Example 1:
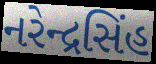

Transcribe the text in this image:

નરેન્દ્રસિંહ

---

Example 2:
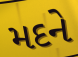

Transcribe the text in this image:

મદને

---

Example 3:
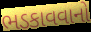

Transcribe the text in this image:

ભડકાવવાનો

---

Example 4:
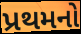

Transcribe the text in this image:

પ્રથમનો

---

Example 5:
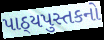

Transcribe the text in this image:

પાઠ્યપુસ્તકનો